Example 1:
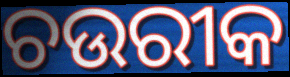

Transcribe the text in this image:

ଚଉରୀକ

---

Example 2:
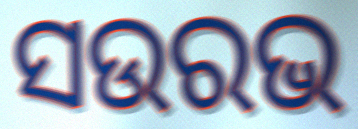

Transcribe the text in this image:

ସଉରଭ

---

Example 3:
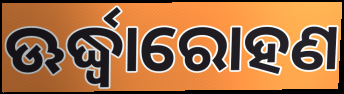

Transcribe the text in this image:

ଊର୍ଦ୍ଧ୍ୱାରୋହଣ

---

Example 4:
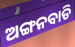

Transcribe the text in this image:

ଅଙ୍ଗନବାଡି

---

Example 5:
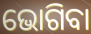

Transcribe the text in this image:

ଭୋଗିବା